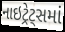
નાઇટ્રેટ્સમાં